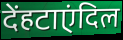
देंहटाएंदिल